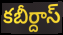
కబీర్దాస్